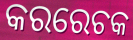
କରରେଚକ